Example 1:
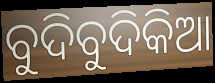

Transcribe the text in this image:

ବୁଦିବୁଦିକିଆ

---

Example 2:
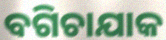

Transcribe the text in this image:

ବଗିଚାଯାକ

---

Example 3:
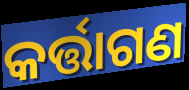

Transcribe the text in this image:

କର୍ତ୍ତାଗଣ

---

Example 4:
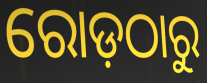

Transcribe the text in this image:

ରୋଡ଼ଠାରୁ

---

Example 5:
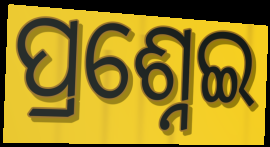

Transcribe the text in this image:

ପ୍ରଶ୍ନେଇ